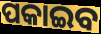
ପକାଇବ